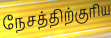
நேசத்திற்குரிய